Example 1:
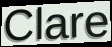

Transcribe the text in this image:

Clare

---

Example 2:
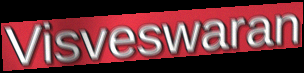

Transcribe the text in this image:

Visveswaran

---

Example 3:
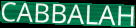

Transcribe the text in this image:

CABBALAH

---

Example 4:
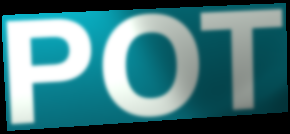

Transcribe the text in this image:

POT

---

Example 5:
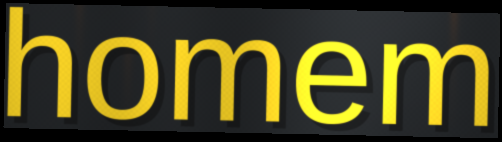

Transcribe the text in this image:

homem